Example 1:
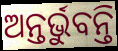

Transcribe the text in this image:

ଅନ୍ତର୍ଭୁବନ୍ତି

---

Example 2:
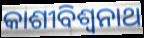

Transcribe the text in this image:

କାଶୀବିଶ୍ଵନାଥ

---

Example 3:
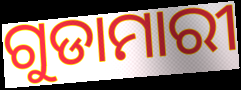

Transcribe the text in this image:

ଗୁଡାମାରୀ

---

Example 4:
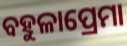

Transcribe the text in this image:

ବହୁଳାପ୍ରେମା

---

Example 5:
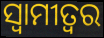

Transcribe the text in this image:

ସ୍ୱାମୀତ୍ୱର